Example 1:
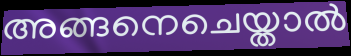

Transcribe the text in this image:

അങ്ങനെചെയ്താൽ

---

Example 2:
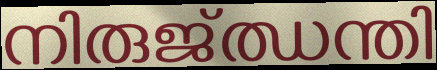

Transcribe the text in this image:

നിരുജ്ഝന്തി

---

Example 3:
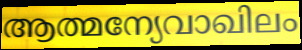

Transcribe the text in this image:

ആത്മന്യേവാഖിലം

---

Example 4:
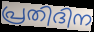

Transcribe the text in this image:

പ്രതിദിന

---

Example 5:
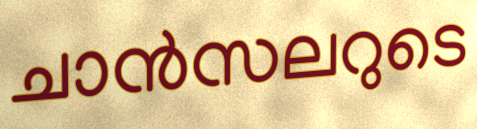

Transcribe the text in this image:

ചാൻസലറുടെ